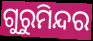
ଗୁରୁମିନ୍ଦର